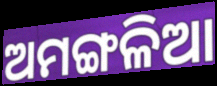
ଅମଙ୍ଗଳିଆ